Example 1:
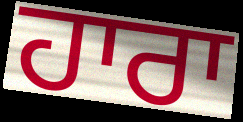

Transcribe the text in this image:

ਹਾਰਾ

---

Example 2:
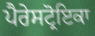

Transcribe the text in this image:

ਪੈਰੇਸਟ੍ਰੋਇਕਾ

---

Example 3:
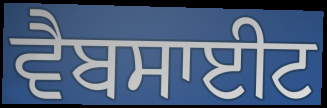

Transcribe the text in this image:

ਵੈਬਸਾਈਟ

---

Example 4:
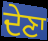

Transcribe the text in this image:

ਦੇਣਾ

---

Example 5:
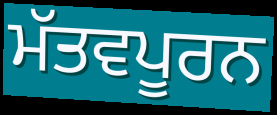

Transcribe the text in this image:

ਮੱਤਵਪੂਰਨ